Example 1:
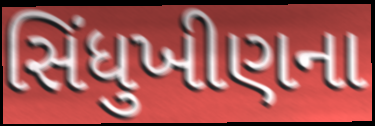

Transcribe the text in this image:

સિંધુખીણના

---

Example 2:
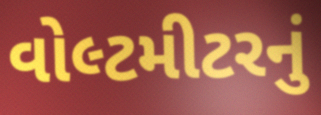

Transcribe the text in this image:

વોલ્ટમીટરનું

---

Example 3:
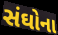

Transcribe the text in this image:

સંઘોના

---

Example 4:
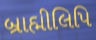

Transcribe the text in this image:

બ્રાહ્મીલિપિ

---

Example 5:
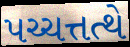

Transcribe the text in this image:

પચ્ચત્તત્થે